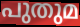
പുതുമ